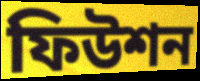
ফিউশন